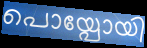
പൊയ്പോയി